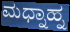
ಮಧ್ನಾಹ್ನ